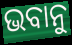
ଭବାନୁ